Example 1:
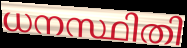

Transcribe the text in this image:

ധനസ്ഥിതി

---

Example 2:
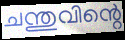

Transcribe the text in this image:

ചന്തുവിന്റെ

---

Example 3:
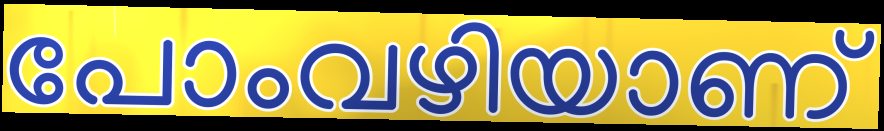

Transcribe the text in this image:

പോംവഴിയാണ്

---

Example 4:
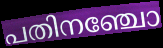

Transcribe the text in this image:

പതിനഞ്ചോ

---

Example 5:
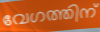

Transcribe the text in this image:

വേഗത്തിന്